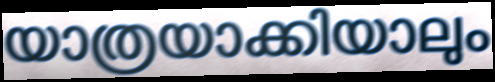
യാത്രയാക്കിയാലും